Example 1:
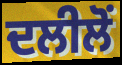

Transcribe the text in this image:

ਦਲੀਲੋਂ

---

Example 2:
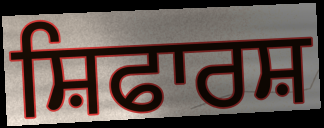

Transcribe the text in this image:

ਸ਼ਿਫਾਰਸ਼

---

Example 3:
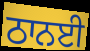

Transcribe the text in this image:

ਠਾਨਈ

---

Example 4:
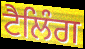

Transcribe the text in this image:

ਟੈਲਿੰਗ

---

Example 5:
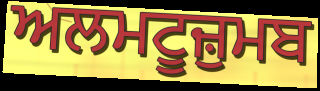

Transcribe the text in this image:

ਅਲਮਟੂਜ਼ੁਮਬ